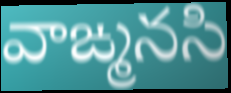
వాఙ్మనసి